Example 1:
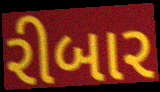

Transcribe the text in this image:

રીબાર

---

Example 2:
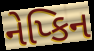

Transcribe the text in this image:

નેપ્કિન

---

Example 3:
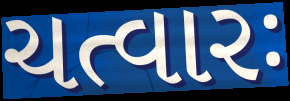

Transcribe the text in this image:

ચત્વારઃ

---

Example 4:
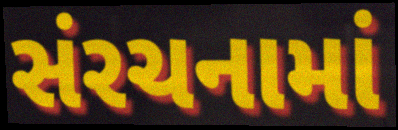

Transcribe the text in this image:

સંરચનામાં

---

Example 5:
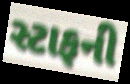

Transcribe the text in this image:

સ્ટાફની